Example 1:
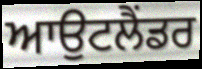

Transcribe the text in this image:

ਆਉਟਲੈਂਡਰ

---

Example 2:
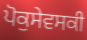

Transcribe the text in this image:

ਪੋਕੁਸੇਵਸਕੀ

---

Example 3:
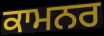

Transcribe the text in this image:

ਕਾਮਨਰ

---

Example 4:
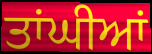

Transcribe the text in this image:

ਤਾਂਘੀਆਂ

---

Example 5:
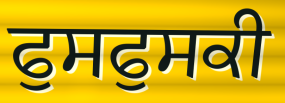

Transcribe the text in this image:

ਫੁਸਫੁਸਕੀ